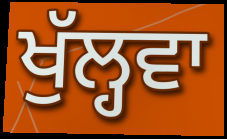
ਖੁੱਲ੍ਹਵਾ